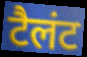
टैलंट